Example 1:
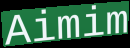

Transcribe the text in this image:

Aimim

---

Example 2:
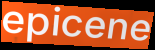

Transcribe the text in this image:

epicene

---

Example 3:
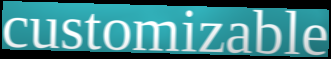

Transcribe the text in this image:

customizable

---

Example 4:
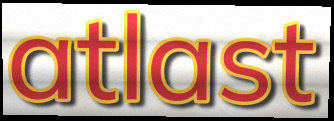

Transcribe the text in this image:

atlast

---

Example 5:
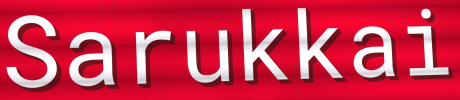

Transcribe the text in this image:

Sarukkai